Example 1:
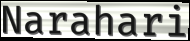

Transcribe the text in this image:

Narahari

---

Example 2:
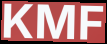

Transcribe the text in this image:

KMF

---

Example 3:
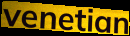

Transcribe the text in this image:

venetian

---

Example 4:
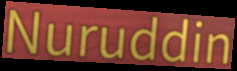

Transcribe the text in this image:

Nuruddin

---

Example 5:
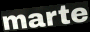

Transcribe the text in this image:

marte